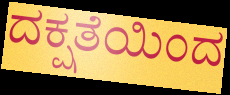
ದಕ್ಷತೆಯಿಂದ